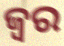
ଜ୍ଵର